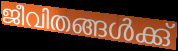
ജീവിതങ്ങൾക്കു്